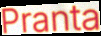
Pranta